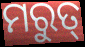
ମରୁତ୍